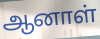
ஆனாள்